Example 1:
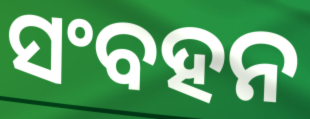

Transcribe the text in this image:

ସଂବହନ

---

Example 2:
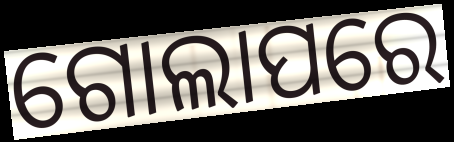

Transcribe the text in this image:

ଗୋଲାପରେ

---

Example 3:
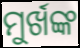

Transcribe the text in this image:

ମୁର୍ଖଙ୍କ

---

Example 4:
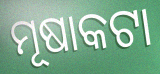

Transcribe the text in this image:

ମୂଷାକଟା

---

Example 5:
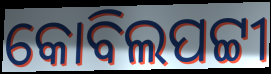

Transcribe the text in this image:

କୋବିଲପଟ୍ଟୀ